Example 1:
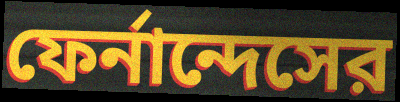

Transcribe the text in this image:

ফের্নান্দেসের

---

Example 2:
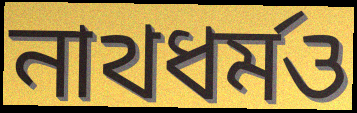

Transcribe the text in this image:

নাথধর্মও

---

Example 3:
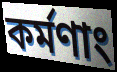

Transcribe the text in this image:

কর্মণাং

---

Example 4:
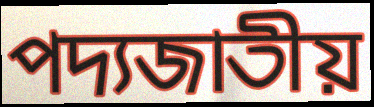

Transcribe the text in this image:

পদ্যজাতীয়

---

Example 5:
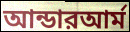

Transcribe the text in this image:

আন্ডারআর্ম